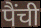
पैंची